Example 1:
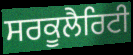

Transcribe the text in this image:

ਸਰਕੂਲੈਰਿਟੀ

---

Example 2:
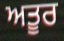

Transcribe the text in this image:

ਅਤੂਰ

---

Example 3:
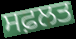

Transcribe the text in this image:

ਸਫ਼ਲਤ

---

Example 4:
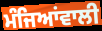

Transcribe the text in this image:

ਮੰਜਿਆਂਵਾਲੀ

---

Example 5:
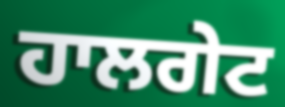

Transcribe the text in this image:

ਹਾਲਗੇਟ